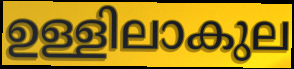
ഉള്ളിലാകുല